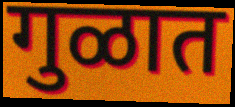
गुळात